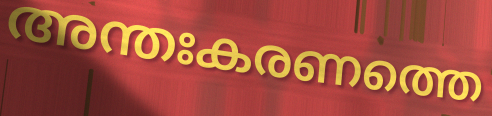
അന്തഃകരണത്തെ